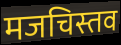
मजचिस्तव